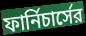
ফার্নিচার্সের